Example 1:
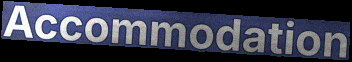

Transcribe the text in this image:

Accommodation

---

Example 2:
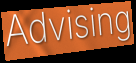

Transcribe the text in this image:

Advising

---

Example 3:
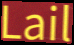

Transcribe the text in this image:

Lail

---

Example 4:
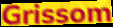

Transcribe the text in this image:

Grissom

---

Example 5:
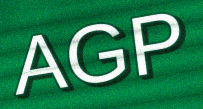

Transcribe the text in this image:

AGP